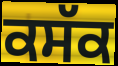
ਕਸੱਕ